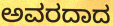
ಅವರದಾದ